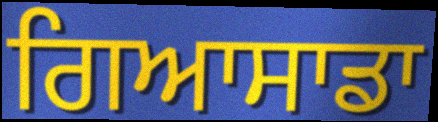
ਗਿਆਸਾਡਾ